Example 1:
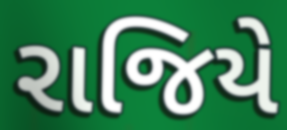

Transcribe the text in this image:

રાજિયે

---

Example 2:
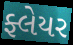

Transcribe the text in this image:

ફ્લેયર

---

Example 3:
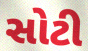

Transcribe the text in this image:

સોટી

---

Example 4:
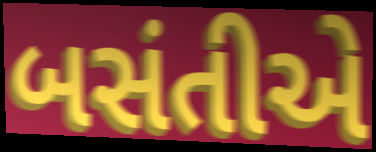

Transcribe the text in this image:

બસંતીએ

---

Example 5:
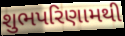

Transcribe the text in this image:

શુભપરિણામથી